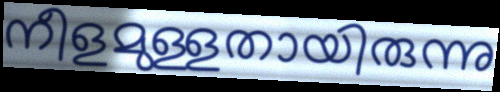
നീളമുള്ളതായിരുന്നു